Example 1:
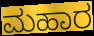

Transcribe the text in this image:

ಮಹಾರ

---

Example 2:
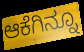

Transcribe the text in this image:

ಆಕೆಗಿನ್ನೂ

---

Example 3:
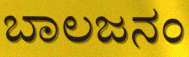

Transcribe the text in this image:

ಬಾಲಜನಂ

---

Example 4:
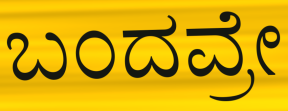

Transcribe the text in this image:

ಬಂದವ್ರೇ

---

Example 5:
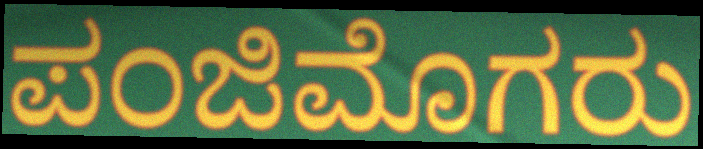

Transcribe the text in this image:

ಪಂಜಿಮೊಗರು